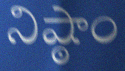
నిష్ఠాం